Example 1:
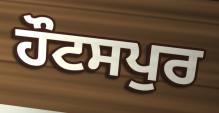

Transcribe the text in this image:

ਹੌਟਸਪੁਰ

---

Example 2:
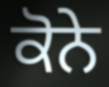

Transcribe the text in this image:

ਕੋਨੇ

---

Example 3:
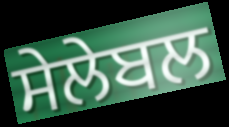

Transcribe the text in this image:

ਸੇਲੇਬਲ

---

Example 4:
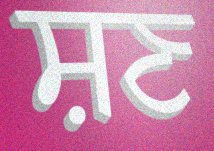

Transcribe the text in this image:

ਸ਼ਣ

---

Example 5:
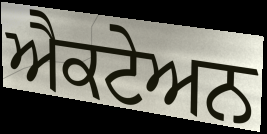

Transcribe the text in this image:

ਐਕਟੇਅਨ